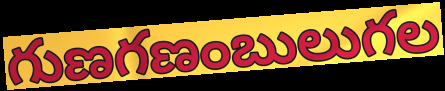
గుణగణంబులుగల